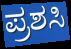
ಪ್ರಶಸಿ